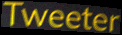
Tweeter